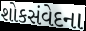
શોકસંવેદના